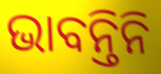
ଭାବନ୍ତିନି